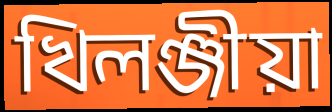
খিলঞ্জীয়া